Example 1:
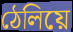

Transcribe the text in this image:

ঠেলিয়ে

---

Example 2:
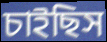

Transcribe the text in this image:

চাইছিস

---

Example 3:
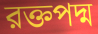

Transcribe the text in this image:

রক্তপদ্ম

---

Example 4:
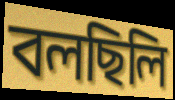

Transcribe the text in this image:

বলছিলি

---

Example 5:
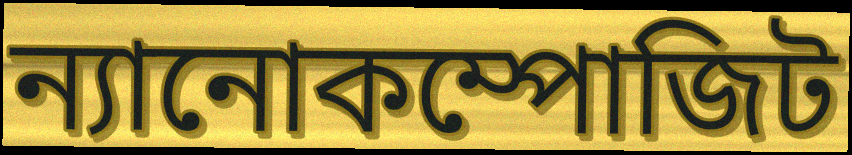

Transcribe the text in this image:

ন্যানোকম্পোজিট